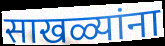
साखळ्यांना